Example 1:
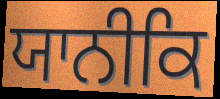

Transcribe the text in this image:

ਯਾਨੀਕਿ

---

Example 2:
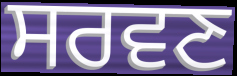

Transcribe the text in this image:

ਸਰਵਣ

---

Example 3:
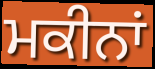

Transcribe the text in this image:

ਮਕੀਨਾਂ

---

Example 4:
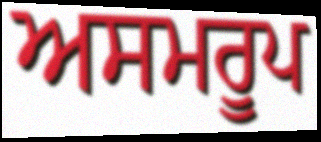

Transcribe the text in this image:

ਅਸਮਰੂਪ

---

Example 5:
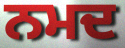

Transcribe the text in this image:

ਨਮਦ